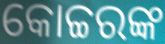
କୋଚ୍ଚରଙ୍କ